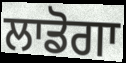
ਲਾਡੋਗਾ